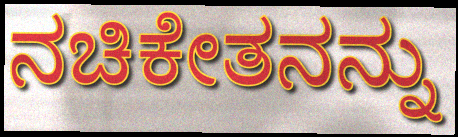
ನಚಿಕೇತನನ್ನು